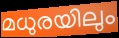
മധുരയിലും